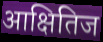
आक्षितिज